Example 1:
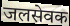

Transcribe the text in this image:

जलसेवक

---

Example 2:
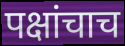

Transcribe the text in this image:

पक्षांचाच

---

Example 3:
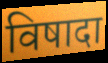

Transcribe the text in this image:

विषादा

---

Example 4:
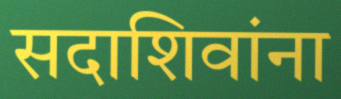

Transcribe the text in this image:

सदाशिवांना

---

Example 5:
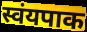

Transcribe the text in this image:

स्वंयपाक